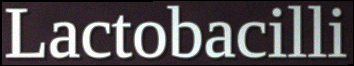
Lactobacilli